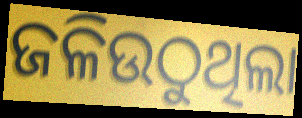
ଜଳିଉଠୁଥିଲା